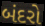
બંદરો